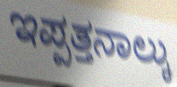
ಇಪ್ಪತ್ತನಾಲ್ಕು